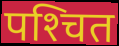
पश्चित